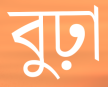
বুঢ়া